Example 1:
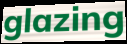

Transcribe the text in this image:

glazing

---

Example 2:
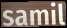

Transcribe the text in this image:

samil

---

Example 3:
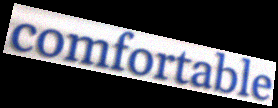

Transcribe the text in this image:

comfortable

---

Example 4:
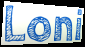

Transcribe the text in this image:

Loni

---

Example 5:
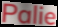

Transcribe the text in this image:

Palie